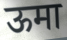
ऊमा